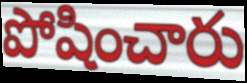
పోషించారు